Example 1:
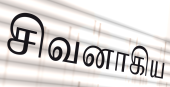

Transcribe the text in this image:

சிவனாகிய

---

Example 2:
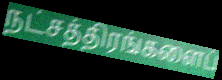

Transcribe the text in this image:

நட்சத்திரங்களைப்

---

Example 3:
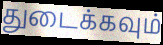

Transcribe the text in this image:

துடைக்கவும்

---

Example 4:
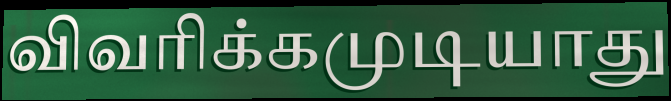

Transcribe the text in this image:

விவரிக்கமுடியாது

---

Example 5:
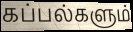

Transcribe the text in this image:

கப்பல்களும்